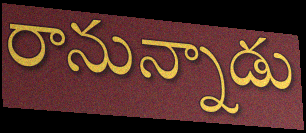
రానున్నాడు